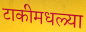
टाकीमधल्या